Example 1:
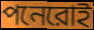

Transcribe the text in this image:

পনেরোই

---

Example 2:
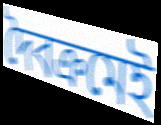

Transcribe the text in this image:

দৈবক্রমেই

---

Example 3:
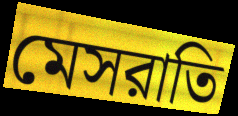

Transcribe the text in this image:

মেসরাতি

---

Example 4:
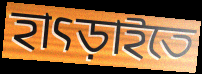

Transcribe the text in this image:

হাৎড়াইতে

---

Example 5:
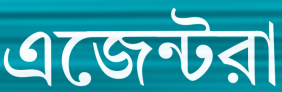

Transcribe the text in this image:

এজেন্টরা